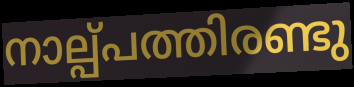
നാല്പ്പത്തിരണ്ടു